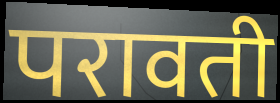
परावती